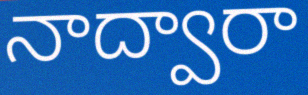
నాద్వారా